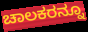
ಚಾಲಕರನ್ನೂ